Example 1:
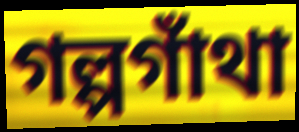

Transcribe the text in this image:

গল্পগাঁথা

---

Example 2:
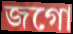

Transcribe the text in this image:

জগো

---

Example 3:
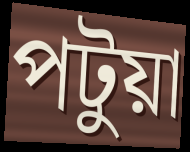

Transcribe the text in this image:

পটুয়া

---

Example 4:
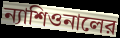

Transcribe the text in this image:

ন্যাশিওনালের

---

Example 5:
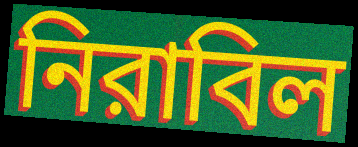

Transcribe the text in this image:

নিরাবিল